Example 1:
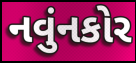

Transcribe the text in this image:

નવુંનકોર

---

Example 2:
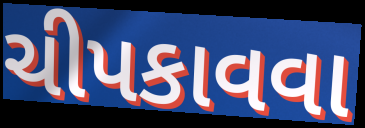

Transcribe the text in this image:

ચીપકાવવા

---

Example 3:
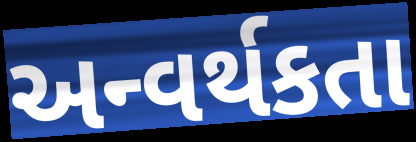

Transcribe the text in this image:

અન્વર્થકતા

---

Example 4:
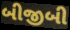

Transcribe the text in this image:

બીજીબી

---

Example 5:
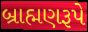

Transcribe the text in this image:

બ્રાહ્મણરૂપે